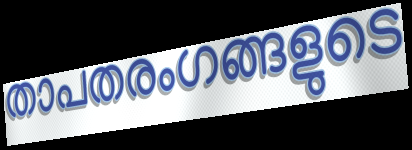
താപതരംഗങ്ങളുടെ